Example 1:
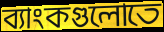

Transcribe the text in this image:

ব্যাংকগুলোতে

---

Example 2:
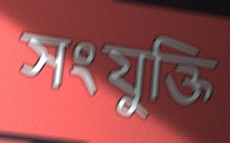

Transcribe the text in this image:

সংযুক্তি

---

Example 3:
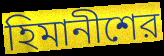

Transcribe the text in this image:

হিমানীশের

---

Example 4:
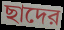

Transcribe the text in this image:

ছাদের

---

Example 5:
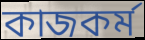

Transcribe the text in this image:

কাজকর্ম